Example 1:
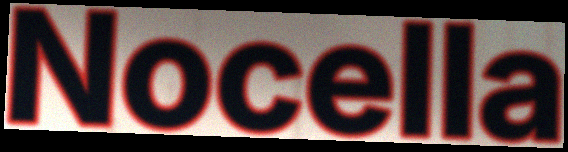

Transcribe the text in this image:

Nocella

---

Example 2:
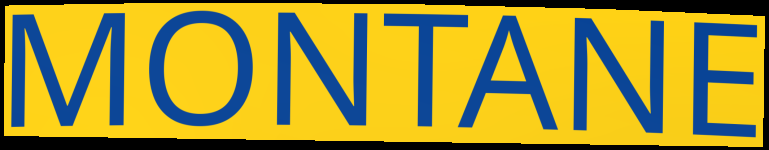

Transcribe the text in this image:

MONTANE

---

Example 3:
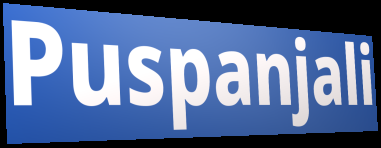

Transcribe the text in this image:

Puspanjali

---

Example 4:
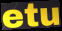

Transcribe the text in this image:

etu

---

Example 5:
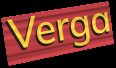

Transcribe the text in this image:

Verga